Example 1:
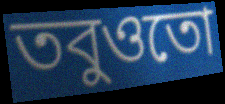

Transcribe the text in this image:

তবুওতো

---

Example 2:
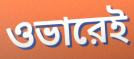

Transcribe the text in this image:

ওভারেই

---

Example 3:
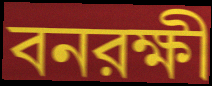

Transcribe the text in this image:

বনরক্ষী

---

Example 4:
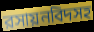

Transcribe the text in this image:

রসায়নবিদসহ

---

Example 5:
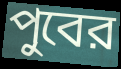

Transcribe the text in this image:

পুবের